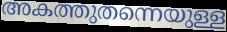
അകത്തുതന്നെയുള്ള